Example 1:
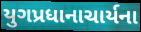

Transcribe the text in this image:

યુગપ્રધાનાચાર્યના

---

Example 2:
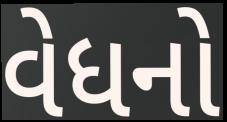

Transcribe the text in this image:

વેધનો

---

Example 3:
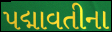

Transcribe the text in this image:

પદ્માવતીના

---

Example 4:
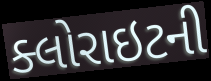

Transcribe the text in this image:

ક્લોરાઇટની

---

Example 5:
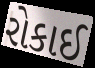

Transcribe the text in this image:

રોકાઈ